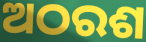
ଅଠରଶ